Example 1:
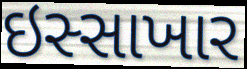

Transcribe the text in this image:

ઇસ્સાખાર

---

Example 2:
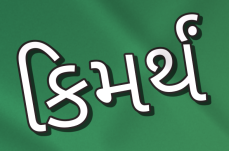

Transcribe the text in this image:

કિમર્થં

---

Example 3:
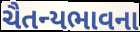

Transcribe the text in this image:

ચૈતન્યભાવના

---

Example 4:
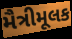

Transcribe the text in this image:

મૈત્રીમૂલક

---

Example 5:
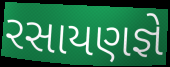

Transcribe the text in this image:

રસાયણજ્ઞે